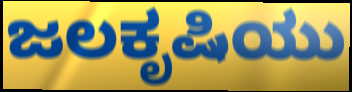
ಜಲಕೃಷಿಯು